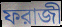
ফরাজী